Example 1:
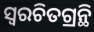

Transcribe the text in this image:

ସ୍ଵରଚିତଗ୍ରନ୍ଥି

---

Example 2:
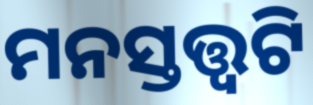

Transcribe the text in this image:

ମନସ୍ତତ୍ତ୍ୱଟି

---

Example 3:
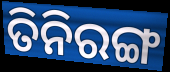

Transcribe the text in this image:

ତିନିରଙ୍ଗ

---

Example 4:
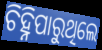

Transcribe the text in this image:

ଚିହ୍ନିପାରୁଥିଲେ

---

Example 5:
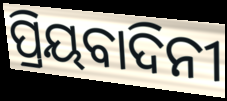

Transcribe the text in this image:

ପ୍ରିୟବାଦିନୀ